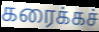
கரைக்கச்